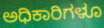
ಅಧಿಕಾರಿಗಳೂ